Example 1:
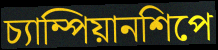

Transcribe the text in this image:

চ্যাম্পিয়ানশিপে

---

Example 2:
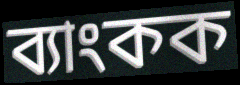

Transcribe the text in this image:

ব্যাংকক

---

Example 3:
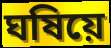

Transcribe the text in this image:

ঘষিয়ে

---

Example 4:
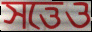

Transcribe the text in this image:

সত্তেও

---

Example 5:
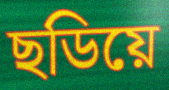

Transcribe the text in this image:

ছডিয়ে